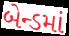
બેન્ડમાં